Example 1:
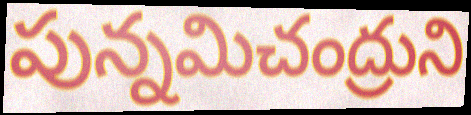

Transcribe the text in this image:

పున్నమిచంద్రుని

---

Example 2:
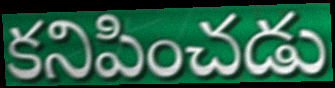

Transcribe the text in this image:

కనిపించడు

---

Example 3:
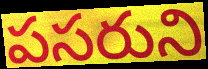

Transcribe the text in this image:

పసరుని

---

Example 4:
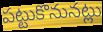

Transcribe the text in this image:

పట్టుకొనునట్లు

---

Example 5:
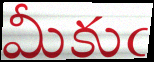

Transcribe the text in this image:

మీకుఁ